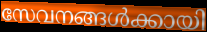
സേവനങ്ങൾക്കായി